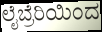
ಲೈಬ್ರೆರಿಯಿಂದ